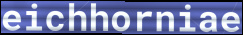
eichhorniae